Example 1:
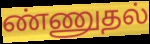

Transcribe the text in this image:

ண்ணுதல்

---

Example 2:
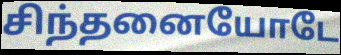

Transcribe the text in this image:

சிந்தனையோடே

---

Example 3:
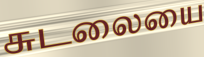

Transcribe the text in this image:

சுடலையை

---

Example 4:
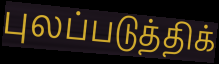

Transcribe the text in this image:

புலப்படுத்திக்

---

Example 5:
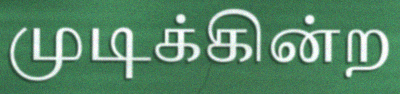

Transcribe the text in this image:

முடிக்கின்ற